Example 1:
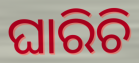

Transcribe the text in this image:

ଘାରିଚି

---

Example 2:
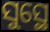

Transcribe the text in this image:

ସୁସ୍ଥେ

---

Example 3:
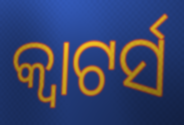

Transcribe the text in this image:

କ୍ଵାଟର୍ସ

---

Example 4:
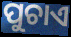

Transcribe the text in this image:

ପୁଚାଏ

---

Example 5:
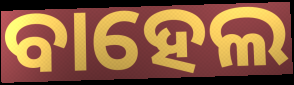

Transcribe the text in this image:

ବାହେଲ